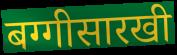
बग्गीसारखी